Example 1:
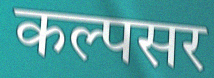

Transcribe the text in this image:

कल्पसर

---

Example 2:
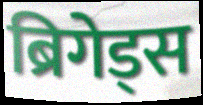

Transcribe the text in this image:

ब्रिगेड्स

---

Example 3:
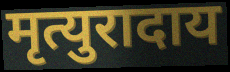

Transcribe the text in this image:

मृत्युरादाय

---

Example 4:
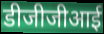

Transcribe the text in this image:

डीजीजीआई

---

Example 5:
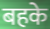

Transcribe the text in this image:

बहके